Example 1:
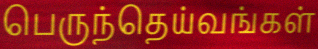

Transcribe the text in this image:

பெருந்தெய்வங்கள்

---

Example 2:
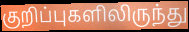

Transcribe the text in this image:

குறிப்புகளிலிருந்து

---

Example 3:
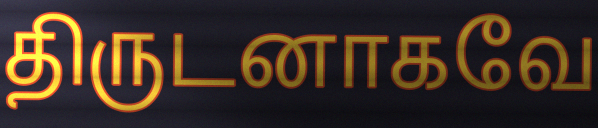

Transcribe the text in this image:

திருடனாகவே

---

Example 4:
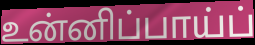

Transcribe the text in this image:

உன்னிப்பாய்ப்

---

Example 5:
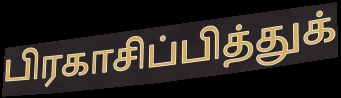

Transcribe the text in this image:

பிரகாசிப்பித்துக்